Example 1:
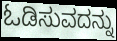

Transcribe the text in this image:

ಓಡಿಸುವದನ್ನು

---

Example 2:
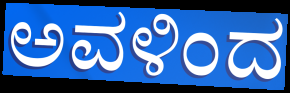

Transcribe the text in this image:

ಅವಳಿಂದ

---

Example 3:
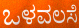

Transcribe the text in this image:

ಒಳವಲಸೆ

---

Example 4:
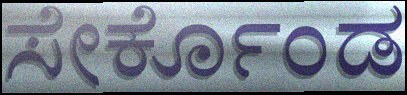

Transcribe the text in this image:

ಸೇರ್ಕೊಂಡ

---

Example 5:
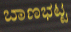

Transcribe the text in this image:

ಬಾಣಭಟ್ಟ